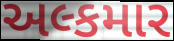
અલ્કમાર